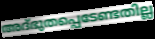
അദ്ഭുതപ്പെടേണ്ടതില്ല